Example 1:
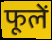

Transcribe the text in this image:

फूलें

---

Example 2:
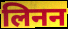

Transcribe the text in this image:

लिनन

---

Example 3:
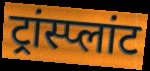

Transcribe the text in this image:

ट्रांस्प्लांट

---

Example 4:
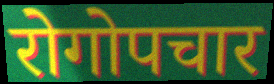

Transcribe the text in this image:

रोगोपचार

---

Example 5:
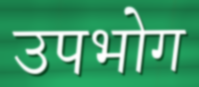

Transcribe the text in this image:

उपभोग